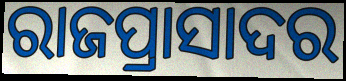
ରାଜପ୍ରାସାଦର